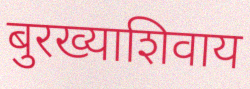
बुरख्याशिवाय